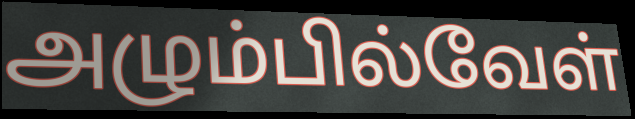
அழும்பில்வேள்